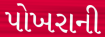
પોખરાની